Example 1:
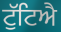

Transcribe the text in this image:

ਟੁੱਟਿਐ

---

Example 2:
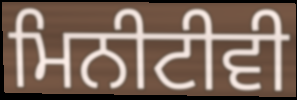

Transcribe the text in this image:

ਮਿਨੀਟੀਵੀ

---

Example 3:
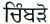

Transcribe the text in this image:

ਚਿੰਬੜੋ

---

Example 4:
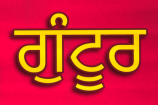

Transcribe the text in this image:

ਗੁੰਟੂਰ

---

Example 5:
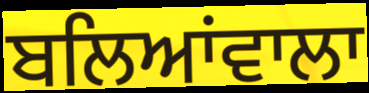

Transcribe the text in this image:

ਬਲਿਆਂਵਾਲਾ